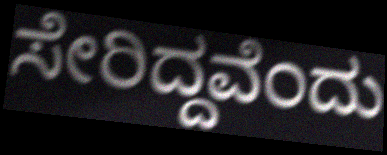
ಸೇರಿದ್ದವೆಂದು